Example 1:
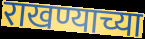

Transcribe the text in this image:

राखण्याच्या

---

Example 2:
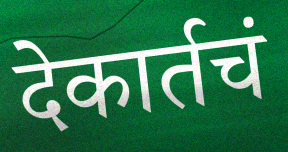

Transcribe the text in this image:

देकार्तचं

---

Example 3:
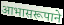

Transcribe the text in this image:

आभासरूपाने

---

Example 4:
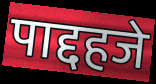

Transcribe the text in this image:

पाद्दहजे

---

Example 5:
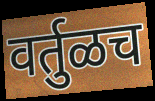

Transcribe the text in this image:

वर्तुळच